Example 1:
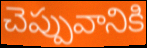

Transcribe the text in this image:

చెప్పువానికి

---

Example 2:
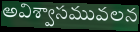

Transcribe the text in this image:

అవిశ్వాసమువలన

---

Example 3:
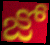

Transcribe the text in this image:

జో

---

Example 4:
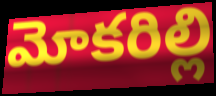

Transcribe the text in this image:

మోకరిల్లి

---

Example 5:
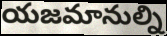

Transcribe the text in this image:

యజమానుల్ని